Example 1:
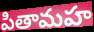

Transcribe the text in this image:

పితామహ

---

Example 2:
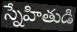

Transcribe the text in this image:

స్నేహితుడి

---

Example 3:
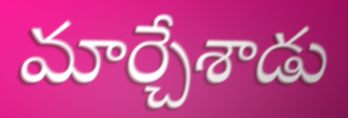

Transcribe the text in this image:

మార్చేశాడు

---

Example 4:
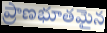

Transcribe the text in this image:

ప్రాణభూతమైన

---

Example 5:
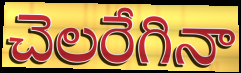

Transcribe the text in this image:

చెలరేగినా